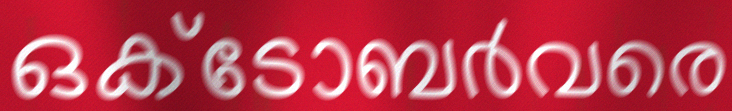
ഒക്ടോബർവരെ